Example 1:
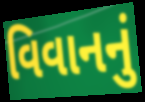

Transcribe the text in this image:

વિવાનનું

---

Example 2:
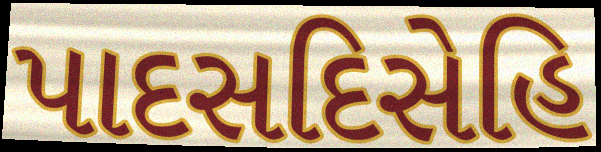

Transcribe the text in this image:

પાદસદિસેહિ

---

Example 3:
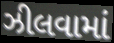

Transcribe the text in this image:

ઝીલવામાં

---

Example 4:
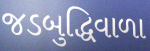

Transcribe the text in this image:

જડબુદ્ધિવાળા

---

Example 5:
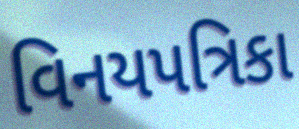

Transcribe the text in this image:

વિનયપત્રિકા